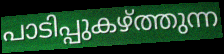
പാടിപ്പുകഴ്ത്തുന്ന